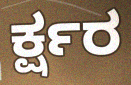
ರ್ಕ್ಷರ